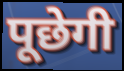
पूछेगी